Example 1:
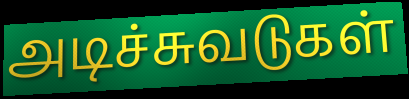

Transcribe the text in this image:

அடிச்சுவடுகள்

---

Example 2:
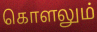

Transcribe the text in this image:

கொளலும்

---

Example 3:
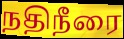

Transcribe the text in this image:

நதிநீரை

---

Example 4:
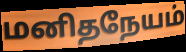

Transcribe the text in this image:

மனிதநேயம்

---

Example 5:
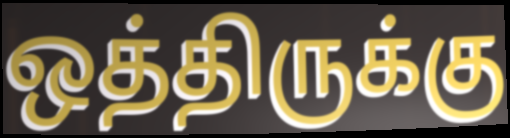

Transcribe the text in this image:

ஒத்திருக்கு